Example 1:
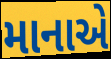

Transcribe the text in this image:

માનાએ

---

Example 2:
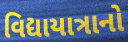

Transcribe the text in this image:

વિદ્યાયાત્રાનો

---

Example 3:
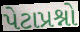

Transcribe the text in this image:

પેટાપ્રશ્નો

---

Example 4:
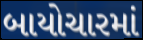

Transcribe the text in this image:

બાયોચારમાં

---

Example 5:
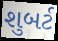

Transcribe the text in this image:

શુબર્ટ